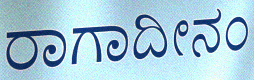
ರಾಗಾದೀನಂ